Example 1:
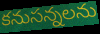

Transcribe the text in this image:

కనుసన్నలను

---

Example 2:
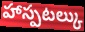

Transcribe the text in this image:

హాస్పటల్కు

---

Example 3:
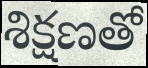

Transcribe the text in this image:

శిక్షణతో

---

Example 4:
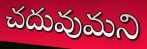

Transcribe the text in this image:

చదువుమని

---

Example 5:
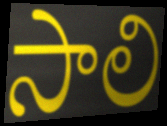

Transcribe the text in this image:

సాలి